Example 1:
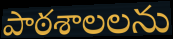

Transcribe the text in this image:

పాఠశాలలను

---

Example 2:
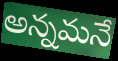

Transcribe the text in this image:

అన్నమనే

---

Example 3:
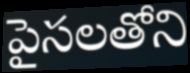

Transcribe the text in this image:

పైసలతోని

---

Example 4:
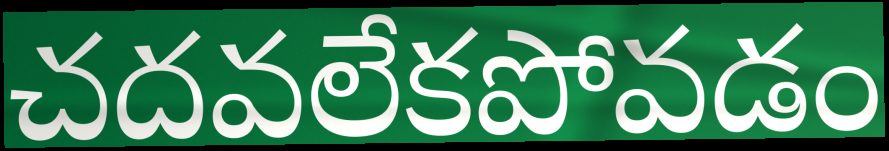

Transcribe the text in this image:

చదవలేకపోవడం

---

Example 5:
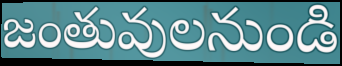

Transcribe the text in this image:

జంతువులనుండి